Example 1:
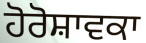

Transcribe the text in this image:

ਹੋਰੋਸ਼ਾਵਕਾ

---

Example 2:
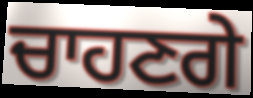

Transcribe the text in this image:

ਚਾਹਣਗੇ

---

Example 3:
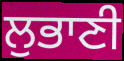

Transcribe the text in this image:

ਲੁਭਾਣੀ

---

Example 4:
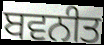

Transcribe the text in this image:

ਬਵਨੀਤ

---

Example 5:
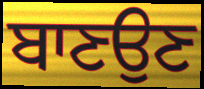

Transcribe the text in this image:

ਬਾਣਉਣ